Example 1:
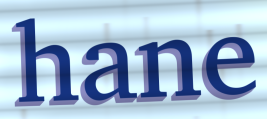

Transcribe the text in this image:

hane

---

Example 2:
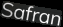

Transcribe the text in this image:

Safran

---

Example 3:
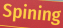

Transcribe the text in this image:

Spining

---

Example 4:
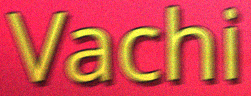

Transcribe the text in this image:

Vachi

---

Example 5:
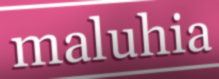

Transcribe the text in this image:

maluhia